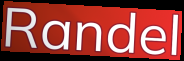
Randel